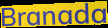
Branada